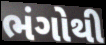
ભંગોથી